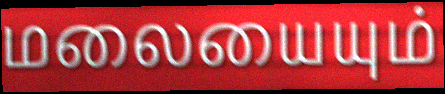
மலையையும்